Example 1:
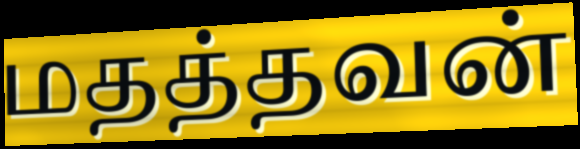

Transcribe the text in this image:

மதத்தவன்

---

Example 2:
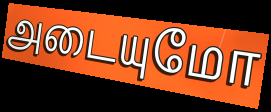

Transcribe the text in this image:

அடையுமோ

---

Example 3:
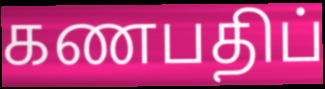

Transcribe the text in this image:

கணபதிப்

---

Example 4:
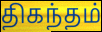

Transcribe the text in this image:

திகந்தம்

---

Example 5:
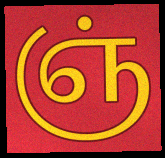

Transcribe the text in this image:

ஞ்